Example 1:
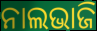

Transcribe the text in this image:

ନାଲଭାଜି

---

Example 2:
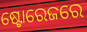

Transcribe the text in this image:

ଷ୍ଟୋରେଜରେ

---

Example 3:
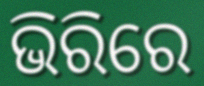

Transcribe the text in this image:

ଭିରିରେ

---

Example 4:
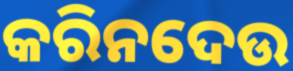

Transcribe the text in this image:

କରିନଦେଉ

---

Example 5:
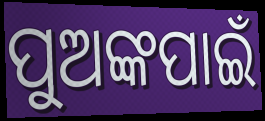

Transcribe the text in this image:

ପୁଅଙ୍କପାଇଁ